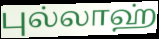
புல்லாஹ்